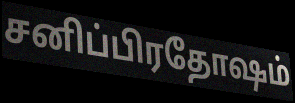
சனிப்பிரதோஷம்